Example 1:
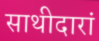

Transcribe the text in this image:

साथीदारां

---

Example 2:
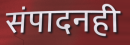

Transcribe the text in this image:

संपादनही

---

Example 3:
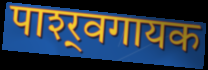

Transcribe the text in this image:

पाश्र्वगायक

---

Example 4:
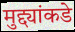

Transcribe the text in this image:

मुद्द्यांकडे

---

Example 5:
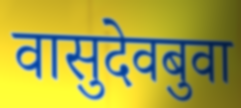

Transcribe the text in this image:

वासुदेवबुवा